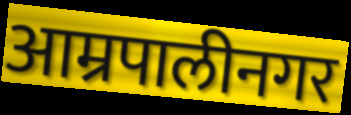
आम्रपालीनगर